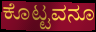
ಕೊಟ್ಟವನೂ